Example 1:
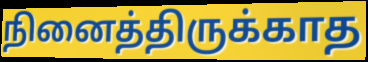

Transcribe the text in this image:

நினைத்திருக்காத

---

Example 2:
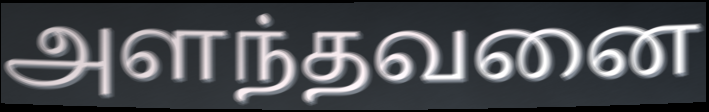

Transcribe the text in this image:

அளந்தவனை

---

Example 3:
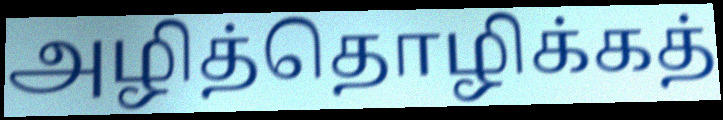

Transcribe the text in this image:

அழித்தொழிக்கத்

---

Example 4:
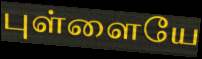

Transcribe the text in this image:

புள்ளையே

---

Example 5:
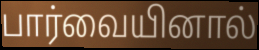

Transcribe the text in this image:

பார்வையினால்